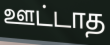
ஊட்டாத